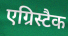
एग्रिस्टैक